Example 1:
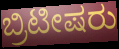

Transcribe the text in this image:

ಬ್ರಿಟೀಷರು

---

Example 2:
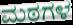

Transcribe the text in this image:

ಮಠಗಳ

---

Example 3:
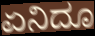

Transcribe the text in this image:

ಏನಿದೂ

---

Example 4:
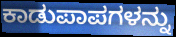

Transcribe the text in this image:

ಕಾಡುಪಾಪಗಳನ್ನು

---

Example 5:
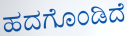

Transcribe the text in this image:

ಹದಗೊಂಡಿದೆ